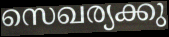
സെഖര്യക്കു